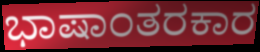
ಭಾಷಾಂತರಕಾರ